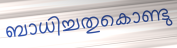
ബാധിച്ചതുകൊണ്ടു